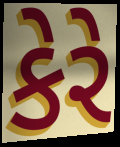
કેરે